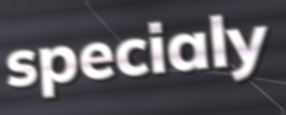
specialy